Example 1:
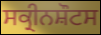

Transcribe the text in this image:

ਸਕ੍ਰੀਨਸ਼ੌਟਸ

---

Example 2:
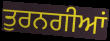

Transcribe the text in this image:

ਤੁਰਨਗੀਆਂ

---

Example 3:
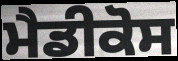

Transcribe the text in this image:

ਮੈਡੀਕੋਸ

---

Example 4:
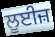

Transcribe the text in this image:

ਲੂਈਜ਼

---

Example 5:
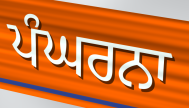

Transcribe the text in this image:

ਪੰਘਰਨਾ